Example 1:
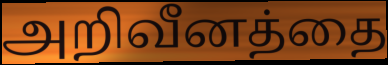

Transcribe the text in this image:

அறிவீனத்தை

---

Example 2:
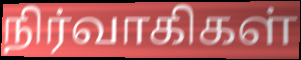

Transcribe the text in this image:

நிர்வாகிகள்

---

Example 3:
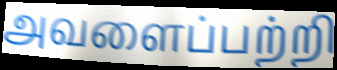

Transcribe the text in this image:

அவளைப்பற்றி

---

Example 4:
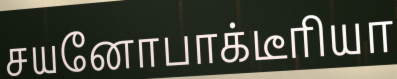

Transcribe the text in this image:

சயனோபாக்டீரியா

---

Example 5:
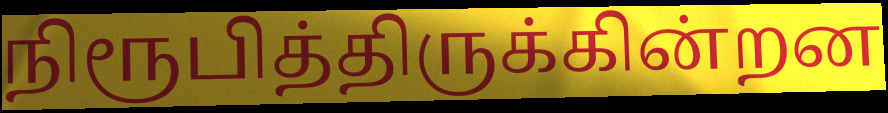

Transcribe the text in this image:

நிரூபித்திருக்கின்றன